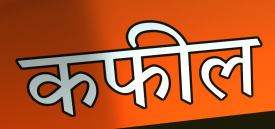
कफील